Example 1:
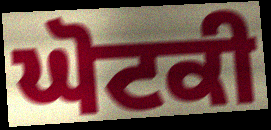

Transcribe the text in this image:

ਘੋਟਕੀ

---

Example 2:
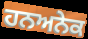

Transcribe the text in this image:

ਹਨਅਨੇਕ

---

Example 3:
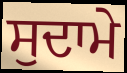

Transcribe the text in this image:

ਸੁਦਾਮੇ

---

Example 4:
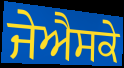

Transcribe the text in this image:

ਜੇਐਸਕੇ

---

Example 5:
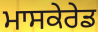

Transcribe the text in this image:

ਮਾਸਕੇਰੇਡ